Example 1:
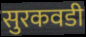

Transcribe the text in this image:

सुरकवडी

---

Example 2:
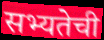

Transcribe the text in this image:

सभ्यतेची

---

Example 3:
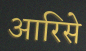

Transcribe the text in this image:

आरिसे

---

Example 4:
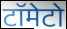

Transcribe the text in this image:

टॉमेटो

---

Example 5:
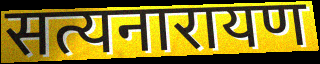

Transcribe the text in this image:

सत्यनारायण